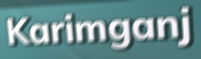
Karimganj